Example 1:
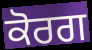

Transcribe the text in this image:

ਕੋਰਗ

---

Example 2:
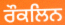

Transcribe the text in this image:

ਰੌਕਲਿਨ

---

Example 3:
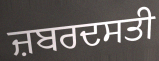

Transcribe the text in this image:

ਜ਼ਬਰਦਸਤੀ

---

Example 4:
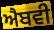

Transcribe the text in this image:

ਐਬਵੀ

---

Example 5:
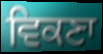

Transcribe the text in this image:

ਵਿਕਣਾ